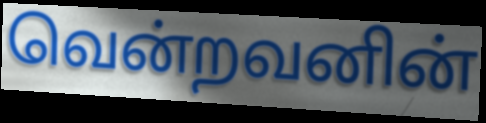
வென்றவனின்